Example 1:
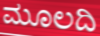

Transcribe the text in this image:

ಮೂಲದಿ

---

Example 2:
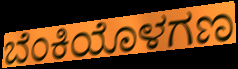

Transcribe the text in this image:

ಬೆಂಕಿಯೊಳಗಣ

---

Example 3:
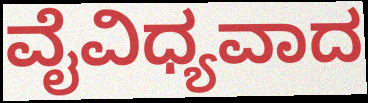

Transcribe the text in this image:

ವೈವಿಧ್ಯವಾದ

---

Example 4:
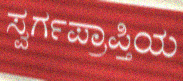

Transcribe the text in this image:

ಸ್ವರ್ಗಪ್ರಾಪ್ತಿಯ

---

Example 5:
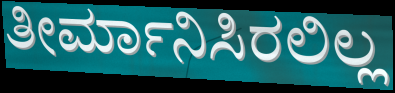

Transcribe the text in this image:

ತೀರ್ಮಾನಿಸಿರಲಿಲ್ಲ